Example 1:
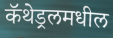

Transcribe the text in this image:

कॅथेड्रलमधील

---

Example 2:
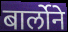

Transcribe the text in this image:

बार्लोने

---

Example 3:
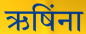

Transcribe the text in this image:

ऋषिंना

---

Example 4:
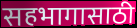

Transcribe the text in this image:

सहभागासाठी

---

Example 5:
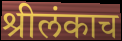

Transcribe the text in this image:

श्रीलंकाच